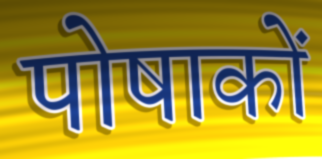
पोषाकों